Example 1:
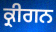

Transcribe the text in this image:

ਕ੍ਰੀਗਨ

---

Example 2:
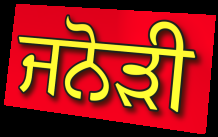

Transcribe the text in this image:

ਜਨੋੜੀ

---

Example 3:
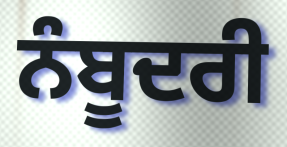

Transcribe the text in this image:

ਨੰਬੂਦਰੀ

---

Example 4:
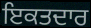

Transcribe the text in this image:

ਇਕਤਦਾਰ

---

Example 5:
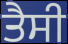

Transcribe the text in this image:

ਤੈਸੀ